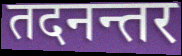
तदनन्तर